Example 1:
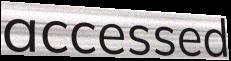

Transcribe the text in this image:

accessed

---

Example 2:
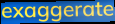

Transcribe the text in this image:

exaggerate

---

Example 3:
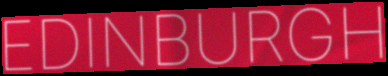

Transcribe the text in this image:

EDINBURGH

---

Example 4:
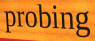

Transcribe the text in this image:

probing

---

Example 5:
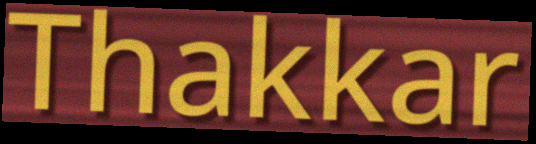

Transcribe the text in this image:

Thakkar